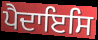
ਪੈਦਾਇਸਿ